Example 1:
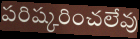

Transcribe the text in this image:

పరిష్కరించలేవు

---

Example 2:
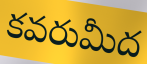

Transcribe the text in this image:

కవరుమీద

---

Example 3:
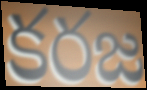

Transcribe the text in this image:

కరజ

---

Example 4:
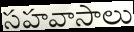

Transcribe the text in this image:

సహవాసాలు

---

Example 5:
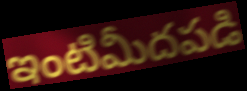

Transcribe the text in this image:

ఇంటిమీదపడి